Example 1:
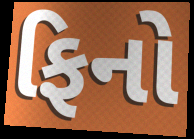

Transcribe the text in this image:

ફિનો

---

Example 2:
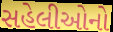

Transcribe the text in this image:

સહેલીઓનો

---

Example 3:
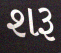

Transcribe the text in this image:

શરૂ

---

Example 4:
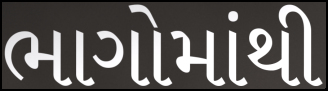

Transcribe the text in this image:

ભાગોમાંથી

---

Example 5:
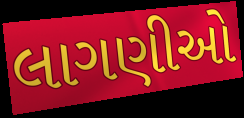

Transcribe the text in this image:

લાગણીઓ